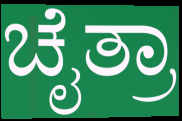
ಚೈತ್ರಾ